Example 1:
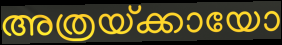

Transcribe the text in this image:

അത്രയ്‌ക്കായോ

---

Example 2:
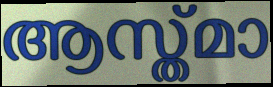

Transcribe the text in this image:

ആസ്ത്മാ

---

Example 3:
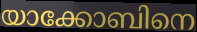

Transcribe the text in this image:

യാക്കോബിനെ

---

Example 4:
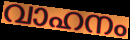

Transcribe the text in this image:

വാഹനം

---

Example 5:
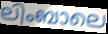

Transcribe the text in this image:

ലിംബാലെ